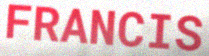
FRANCIS